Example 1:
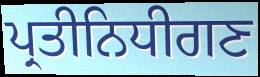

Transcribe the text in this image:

ਪ੍ਰਤੀਨਿਧੀਗਣ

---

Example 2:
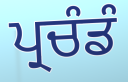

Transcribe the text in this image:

ਪ੍ਰਚੰਡੰ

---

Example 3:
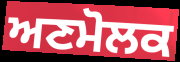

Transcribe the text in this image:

ਅਣਮੋਲਕ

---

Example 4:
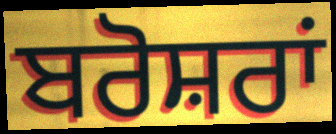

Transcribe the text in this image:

ਬਰੋਸ਼ਰਾਂ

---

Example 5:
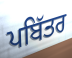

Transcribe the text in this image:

ਪਬਿੱਤਰ